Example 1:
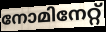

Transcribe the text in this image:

നോമിനേറ്റ്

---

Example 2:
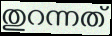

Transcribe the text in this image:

തുറന്നത്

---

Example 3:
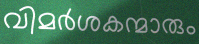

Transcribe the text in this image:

വിമർശകന്മാരും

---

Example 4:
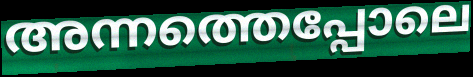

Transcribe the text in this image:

അന്നത്തെപ്പോലെ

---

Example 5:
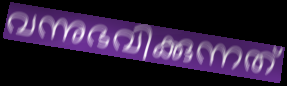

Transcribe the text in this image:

വന്നുഭവിക്കുന്നത്